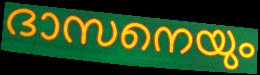
ദാസനെയും